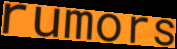
rumors